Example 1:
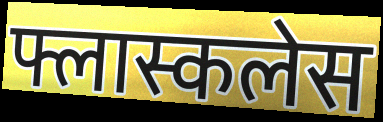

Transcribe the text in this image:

फ्लास्कलेस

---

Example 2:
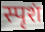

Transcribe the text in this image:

स्पृशं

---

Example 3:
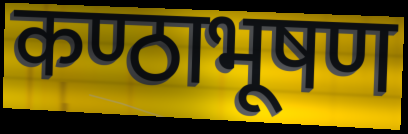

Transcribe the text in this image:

कण्ठाभूषण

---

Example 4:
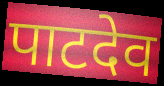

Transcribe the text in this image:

पाटदेव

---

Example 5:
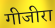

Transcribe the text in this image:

गीजीरा